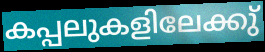
കപ്പലുകളിലേക്കു്